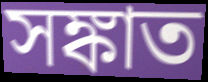
সঙ্কাত